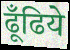
ढूँढिये